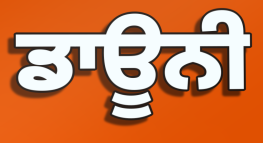
ਡਾਊਨੀ